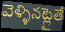
వెళ్ళినట్లైతే